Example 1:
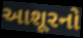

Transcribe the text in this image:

આશૂરનો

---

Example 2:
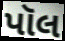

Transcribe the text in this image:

પૉલ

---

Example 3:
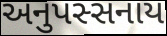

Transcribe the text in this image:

અનુપસ્સનાય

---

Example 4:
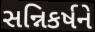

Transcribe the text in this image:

સન્નિકર્ષને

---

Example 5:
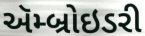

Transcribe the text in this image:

ઍમ્બ્રોઇડરી